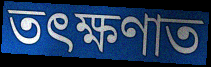
তৎক্ষণাত